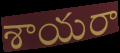
శాయరా